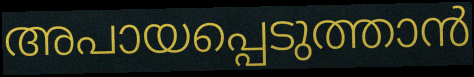
അപായപ്പെടുത്താൻ